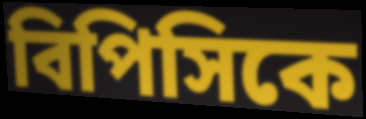
বিপিসিকে